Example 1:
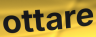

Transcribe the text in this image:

ottare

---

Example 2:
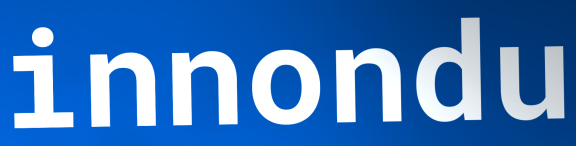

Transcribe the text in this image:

innondu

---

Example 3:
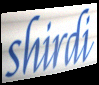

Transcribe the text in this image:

shirdi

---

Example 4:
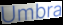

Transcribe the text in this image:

Umbra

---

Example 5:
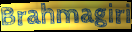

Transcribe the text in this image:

Brahmagiri